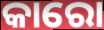
କାରୋ